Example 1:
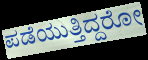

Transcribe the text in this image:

ಪಡೆಯುತ್ತಿದ್ದರೋ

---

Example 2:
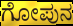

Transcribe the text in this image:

ಗೋಪುನ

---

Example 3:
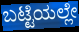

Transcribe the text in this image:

ಬಟ್ಟೆಯಲ್ಲೇ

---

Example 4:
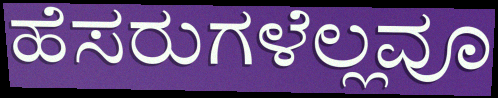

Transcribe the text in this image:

ಹೆಸರುಗಳೆಲ್ಲವೂ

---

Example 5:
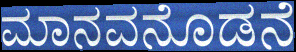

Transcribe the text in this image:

ಮಾನವನೊಡನೆ